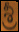
శ్రీ